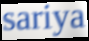
sariya